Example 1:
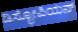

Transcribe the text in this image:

ಡಿಸ್ಟೋಪಿಯನ್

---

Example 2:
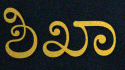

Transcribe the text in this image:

ಶಿಖಾ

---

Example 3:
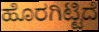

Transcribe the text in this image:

ಹೊರಗಿಟ್ಟಿದೆ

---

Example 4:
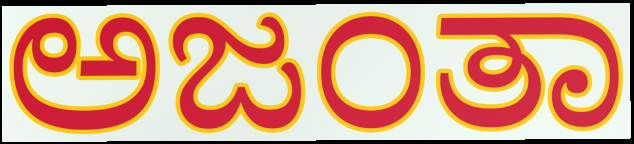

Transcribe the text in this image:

ಅಜಂತಾ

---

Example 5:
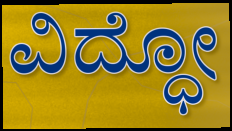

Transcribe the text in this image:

ವಿದ್ಧೋ